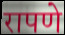
रापणे